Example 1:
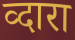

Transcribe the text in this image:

व्दारा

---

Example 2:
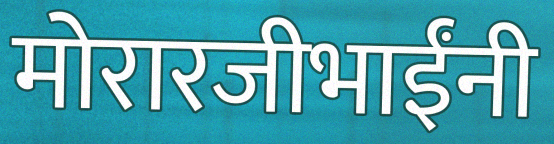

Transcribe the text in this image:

मोरारजीभाईंनी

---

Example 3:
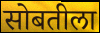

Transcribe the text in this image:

सोबतीला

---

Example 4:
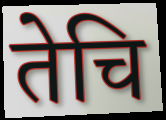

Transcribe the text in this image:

तेचि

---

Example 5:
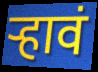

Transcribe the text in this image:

र्‍हावं